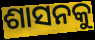
ଶାସନକୁ